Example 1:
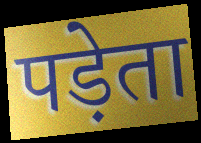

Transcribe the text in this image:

पड़ेता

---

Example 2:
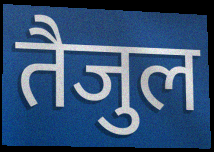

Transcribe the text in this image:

तैजुल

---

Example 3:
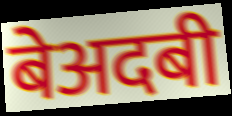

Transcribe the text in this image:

बेअदबी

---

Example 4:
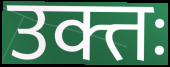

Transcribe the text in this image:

उक्तः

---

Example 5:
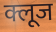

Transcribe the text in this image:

क्लूज